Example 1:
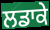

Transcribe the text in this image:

ਲਡਾਕੇ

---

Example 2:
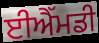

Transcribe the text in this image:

ਈਐੱਮਡੀ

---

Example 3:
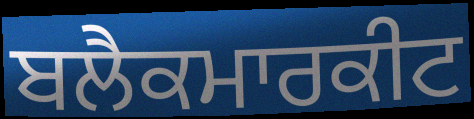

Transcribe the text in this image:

ਬਲੈਕਮਾਰਕੀਟ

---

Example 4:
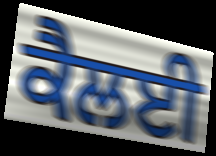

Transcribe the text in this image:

ਕੈਲਈ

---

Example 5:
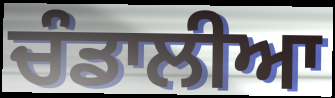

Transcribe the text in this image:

ਚੰਡਾਲੀਆ